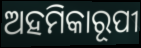
ଅହମିକାରୂପୀ